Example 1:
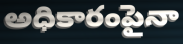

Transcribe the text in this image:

అధికారంపైనా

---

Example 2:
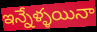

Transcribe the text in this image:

ఇన్నేళ్ళయినా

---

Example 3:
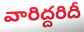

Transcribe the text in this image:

వారిద్దరిదీ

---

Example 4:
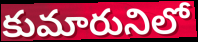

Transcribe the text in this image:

కుమారునిలో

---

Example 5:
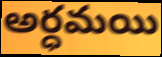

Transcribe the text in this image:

అర్ధమయి